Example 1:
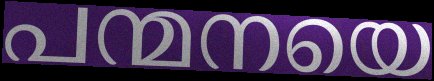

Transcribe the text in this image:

പന്മനയെ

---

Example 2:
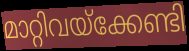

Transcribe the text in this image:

മാറ്റിവയ്ക്കേണ്ടി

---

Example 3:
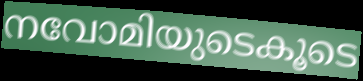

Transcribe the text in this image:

നവോമിയുടെകൂടെ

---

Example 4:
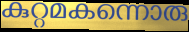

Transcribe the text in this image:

കുറ്റമകന്നൊരു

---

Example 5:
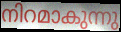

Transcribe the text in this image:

നിറമാകുന്നു